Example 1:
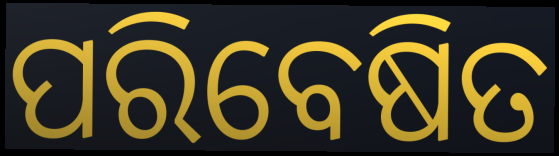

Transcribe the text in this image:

ପରିବେଷିତ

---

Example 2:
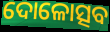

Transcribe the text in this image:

ଦୋଳୋତ୍ସବ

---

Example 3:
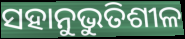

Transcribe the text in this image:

ସହାନୁଭୁତିଶୀଳ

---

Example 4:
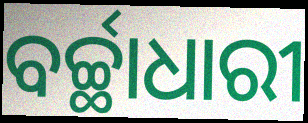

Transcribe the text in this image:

ବର୍ଚ୍ଛାଧାରୀ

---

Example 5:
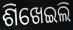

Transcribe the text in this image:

ଶିଖେଇଲି